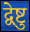
द्वेष्टु